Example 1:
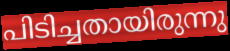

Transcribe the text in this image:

പിടിച്ചതായിരുന്നു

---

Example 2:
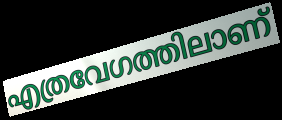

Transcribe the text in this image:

എത്രവേഗത്തിലാണ്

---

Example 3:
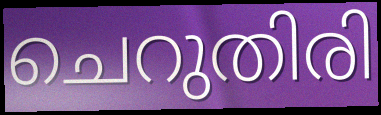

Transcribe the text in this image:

ചെറുതിരി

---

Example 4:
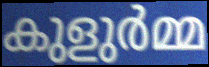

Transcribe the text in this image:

കുളുർമ്മ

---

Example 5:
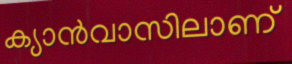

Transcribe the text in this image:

ക്യാൻവാസിലാണ്